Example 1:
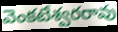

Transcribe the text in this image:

వెంకటేశ్వరరావు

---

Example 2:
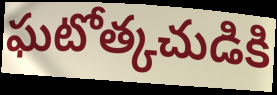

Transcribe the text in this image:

ఘటోత్కచుడికి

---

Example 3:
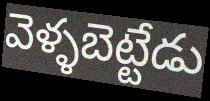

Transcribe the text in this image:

వెళ్ళబెట్టేడు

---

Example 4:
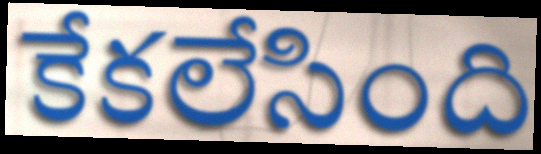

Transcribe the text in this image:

కేకలేసింది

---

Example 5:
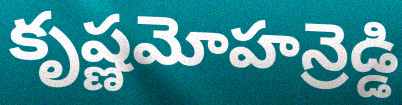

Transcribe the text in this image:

కృష్ణమోహన్రెడ్డి